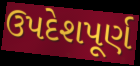
ઉપદેશપૂર્ણ